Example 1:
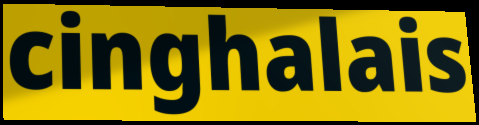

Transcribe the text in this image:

cinghalais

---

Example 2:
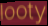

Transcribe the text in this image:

looty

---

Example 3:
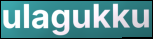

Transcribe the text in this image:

ulagukku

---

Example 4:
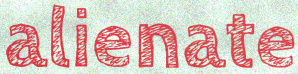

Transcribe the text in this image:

alienate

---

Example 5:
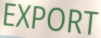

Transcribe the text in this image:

EXPORT